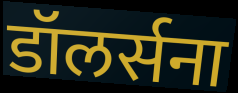
डॉलर्सना